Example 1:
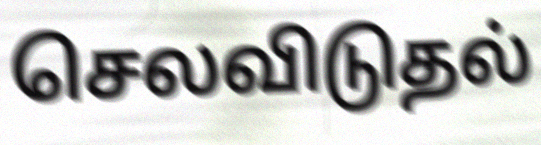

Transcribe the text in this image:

செலவிடுதல்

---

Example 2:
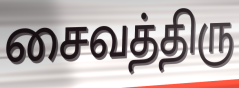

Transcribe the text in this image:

சைவத்திரு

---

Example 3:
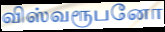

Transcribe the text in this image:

விஸ்வரூபனோ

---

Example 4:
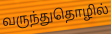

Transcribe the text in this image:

வருந்துதொழில்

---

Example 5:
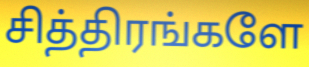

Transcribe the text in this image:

சித்திரங்களே